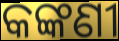
କଙ୍କଣୀ